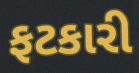
ફટકારી